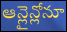
ఆన్లైన్లోనూ